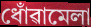
ধোঁৱামেলা